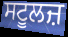
ਸਟੂਲਜ਼